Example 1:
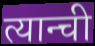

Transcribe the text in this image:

त्यान्ची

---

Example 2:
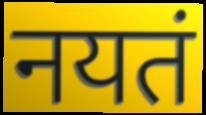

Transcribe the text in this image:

नयतं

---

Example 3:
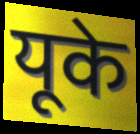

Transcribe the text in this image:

यूके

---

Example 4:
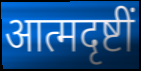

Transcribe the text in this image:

आत्मदृष्टीं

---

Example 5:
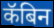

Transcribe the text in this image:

कॅबिन